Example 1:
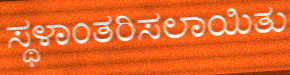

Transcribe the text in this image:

ಸ್ಥಳಾಂತರಿಸಲಾಯಿತು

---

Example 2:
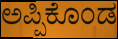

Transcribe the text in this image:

ಅಪ್ಪಿಕೊಂಡ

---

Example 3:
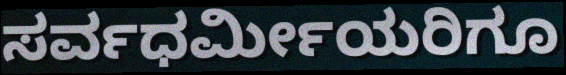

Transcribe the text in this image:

ಸರ್ವಧರ್ಮೀಯರಿಗೂ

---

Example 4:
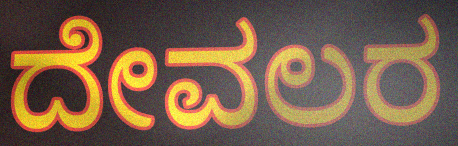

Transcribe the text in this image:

ದೇವಲರ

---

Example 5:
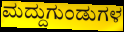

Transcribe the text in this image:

ಮದ್ದುಗುಂಡುಗಳ